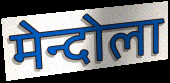
मेन्दोला